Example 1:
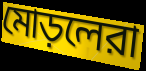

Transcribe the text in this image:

মোড়লেরা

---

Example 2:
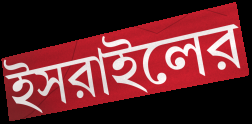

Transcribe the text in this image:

ইসরাইলের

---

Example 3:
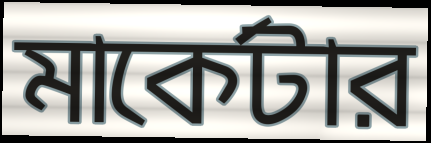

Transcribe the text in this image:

মার্কেটার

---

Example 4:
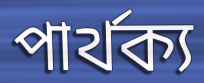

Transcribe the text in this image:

পার্থক্য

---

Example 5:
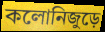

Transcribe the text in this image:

কলোনিজুড়ে